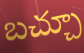
బచ్చూ